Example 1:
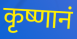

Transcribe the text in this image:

कृष्णानं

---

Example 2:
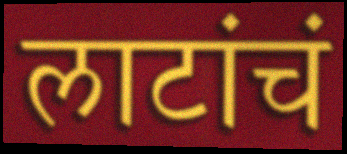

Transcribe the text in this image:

लाटांचं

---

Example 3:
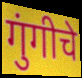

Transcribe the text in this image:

गुंगीचे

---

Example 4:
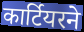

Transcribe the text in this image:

कार्टियरने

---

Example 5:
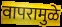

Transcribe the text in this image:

वापरामुळे